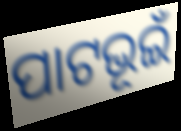
ପାଟଭୂଇଁ